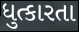
ધુત્કારતા